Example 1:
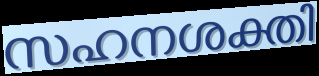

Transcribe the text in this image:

സഹനശക്തി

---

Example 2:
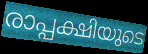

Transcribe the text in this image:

രാപ്പക്ഷിയുടെ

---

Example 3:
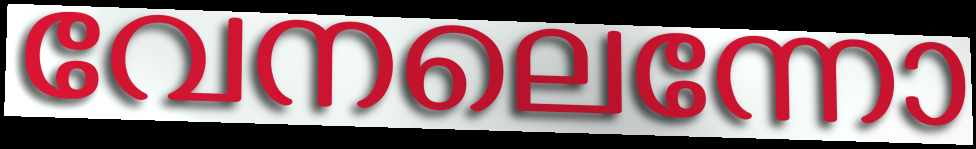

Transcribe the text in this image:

വേനലെന്നോ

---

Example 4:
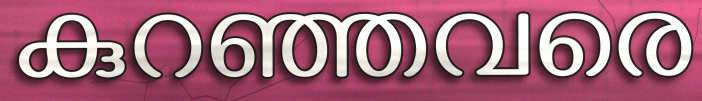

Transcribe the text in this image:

കുറഞ്ഞവരെ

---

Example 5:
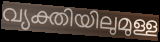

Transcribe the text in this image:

വ്യക്തിയിലുമുള്ള